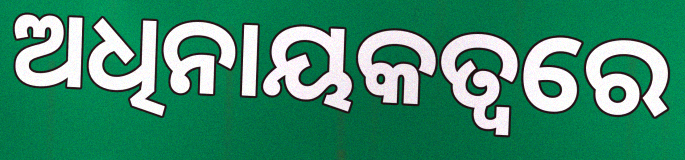
ଅଧିନାୟକତ୍ବରେ